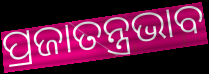
ପ୍ରଜାତନ୍ତ୍ରଭାବ